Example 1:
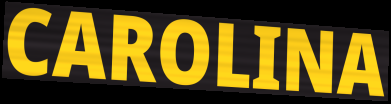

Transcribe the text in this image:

CAROLINA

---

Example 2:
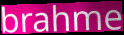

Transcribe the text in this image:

brahme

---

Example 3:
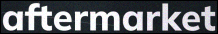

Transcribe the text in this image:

aftermarket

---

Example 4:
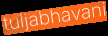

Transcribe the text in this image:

tuljabhavani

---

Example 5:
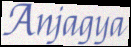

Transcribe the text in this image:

Anjagya